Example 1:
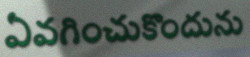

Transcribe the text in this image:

ఏవగించుకొందును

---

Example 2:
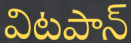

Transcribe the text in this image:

విటపాన్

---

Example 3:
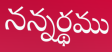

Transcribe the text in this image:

నన్నర్థము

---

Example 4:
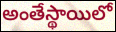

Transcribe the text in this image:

అంతేస్థాయిలో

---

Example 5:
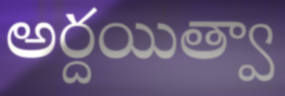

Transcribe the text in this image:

అర్దయిత్వా